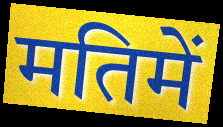
मतिमें